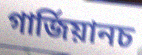
গাৰ্জিয়ানচ